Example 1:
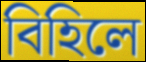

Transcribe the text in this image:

বিহিলে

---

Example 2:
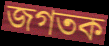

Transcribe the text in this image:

জগতক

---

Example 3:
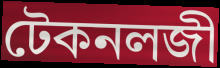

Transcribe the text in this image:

টেকনলজী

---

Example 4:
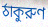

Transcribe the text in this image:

ঠাকুৰুণ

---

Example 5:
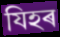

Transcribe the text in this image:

যিহৰ